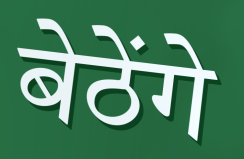
बेठेंगे